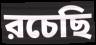
রচেছি